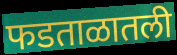
फडताळातली